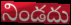
నిండదు